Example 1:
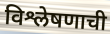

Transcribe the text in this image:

विश्लेषणाची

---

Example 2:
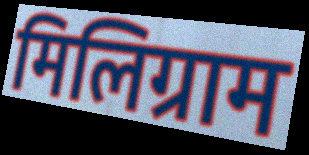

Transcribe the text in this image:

मिलिग्राम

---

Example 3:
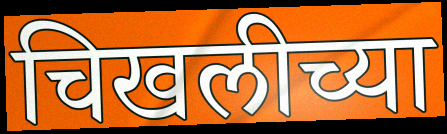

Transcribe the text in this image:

चिखलीच्या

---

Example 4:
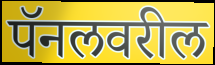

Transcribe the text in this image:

पॅनलवरील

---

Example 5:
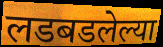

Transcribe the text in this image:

लडबडलेल्या